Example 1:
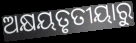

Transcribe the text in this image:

ଅକ୍ଷୟତୃତୀୟାରୁ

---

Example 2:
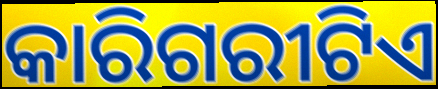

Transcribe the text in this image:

କାରିଗରୀଟିଏ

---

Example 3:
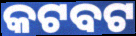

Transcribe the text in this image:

କଟବଟ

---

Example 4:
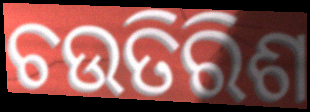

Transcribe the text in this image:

ଚଉତିରିଶ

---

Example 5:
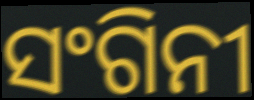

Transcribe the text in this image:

ସଂଗିନୀ